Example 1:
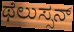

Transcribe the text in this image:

ಥೆಲುಸ್ಸನ್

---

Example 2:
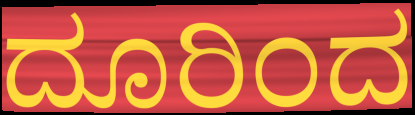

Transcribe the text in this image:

ದೂರಿಂದ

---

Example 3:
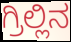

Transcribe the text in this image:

ಗ್ರಿಲ್ಲಿನ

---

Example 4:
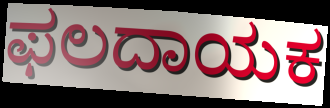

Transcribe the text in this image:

ಫಲದಾಯಕ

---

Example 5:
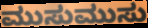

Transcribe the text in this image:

ಮುಸುಮುಸು